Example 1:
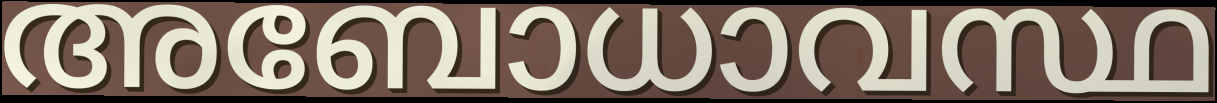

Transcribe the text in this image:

അബോധാവസ്ഥ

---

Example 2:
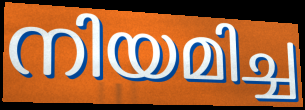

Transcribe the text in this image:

നിയമിച്ച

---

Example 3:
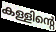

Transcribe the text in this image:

കള്ളിന്റെ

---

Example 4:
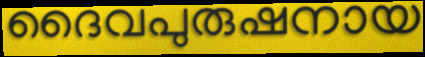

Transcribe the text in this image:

ദൈവപുരുഷനായ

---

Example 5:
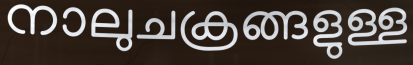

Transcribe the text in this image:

നാലുചക്രങ്ങളുള്ള